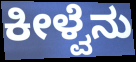
ಕೀಳ್ವೆನು